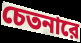
চেতনারে